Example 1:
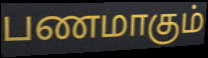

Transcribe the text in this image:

பணமாகும்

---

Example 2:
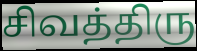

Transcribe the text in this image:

சிவத்திரு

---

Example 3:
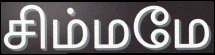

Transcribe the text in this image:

சிம்மமே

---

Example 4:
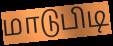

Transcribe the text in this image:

மாடுபிடி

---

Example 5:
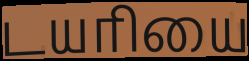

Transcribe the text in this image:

டயரியை